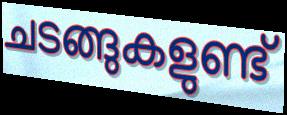
ചടങ്ങുകളുണ്ട്